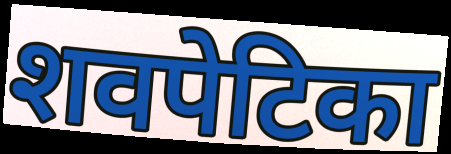
शवपेटिका